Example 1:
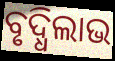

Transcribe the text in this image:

ବୃଦ୍ଧିଲାଭ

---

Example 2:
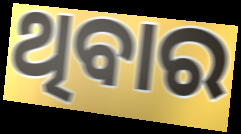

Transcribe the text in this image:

ଥିବାର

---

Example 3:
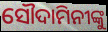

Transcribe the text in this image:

ସୌଦାମିନୀଙ୍କୁ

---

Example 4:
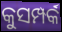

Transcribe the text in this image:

କୁସମ୍ପର୍କ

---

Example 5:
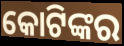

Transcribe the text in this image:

କୋଟିଙ୍କର